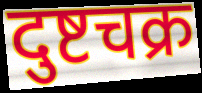
दुष्टचक्र